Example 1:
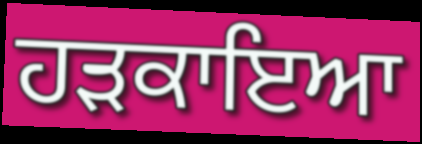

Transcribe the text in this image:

ਹੜਕਾਇਆ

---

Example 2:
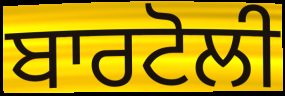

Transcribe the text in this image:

ਬਾਰਟੋਲੀ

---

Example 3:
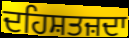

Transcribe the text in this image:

ਦਹਿਸ਼ਤਜ਼ਦਾ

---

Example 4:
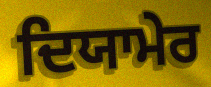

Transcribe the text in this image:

ਦਿਯਾਮੇਰ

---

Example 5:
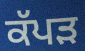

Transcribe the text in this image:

ਕੱਪੜ